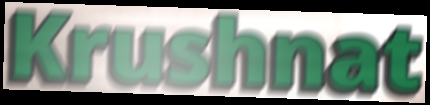
Krushnat